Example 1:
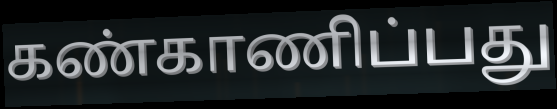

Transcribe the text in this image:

கண்காணிப்பது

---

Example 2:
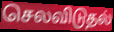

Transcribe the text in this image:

செலவிடுதல்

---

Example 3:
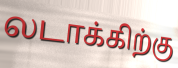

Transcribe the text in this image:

லடாக்கிற்கு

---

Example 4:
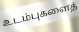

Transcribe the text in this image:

உடம்புகளைத்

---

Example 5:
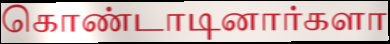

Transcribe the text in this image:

கொண்டாடினார்களா